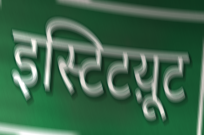
इस्टिटय़ूट